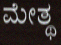
ಮೇತ್ಥ